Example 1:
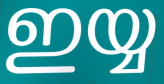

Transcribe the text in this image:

ഇയ്യ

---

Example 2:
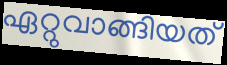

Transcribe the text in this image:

ഏറ്റുവാങ്ങിയത്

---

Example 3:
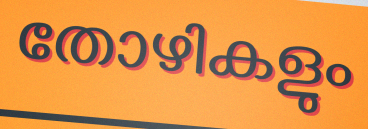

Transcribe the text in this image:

തോഴികളും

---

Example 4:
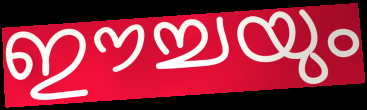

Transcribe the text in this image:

ഈച്ചയും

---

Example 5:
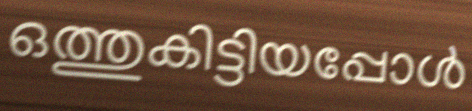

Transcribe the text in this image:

ഒത്തുകിട്ടിയപ്പോൾ